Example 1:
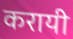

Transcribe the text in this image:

करायी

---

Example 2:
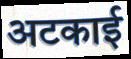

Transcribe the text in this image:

अटकाई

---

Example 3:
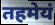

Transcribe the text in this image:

तहमेयं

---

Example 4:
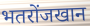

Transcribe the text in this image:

भतरोंजखान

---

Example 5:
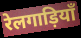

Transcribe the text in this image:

रेलगाड़ियाँ